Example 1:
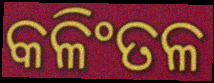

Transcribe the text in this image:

କଳିଂତଳ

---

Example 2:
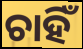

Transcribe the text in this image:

ଚାହିଁ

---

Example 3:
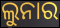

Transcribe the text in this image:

ଲୁନାର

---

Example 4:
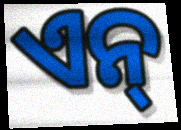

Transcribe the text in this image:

ଏନ୍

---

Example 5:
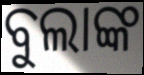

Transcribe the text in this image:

ବୁଲାଙ୍କ